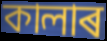
কালাৰ